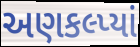
અણકલ્પ્યાં